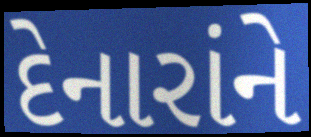
દેનારાંને